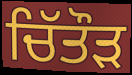
ਚਿੱਤੌੜ